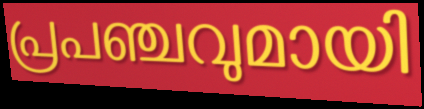
പ്രപഞ്ചവുമായി